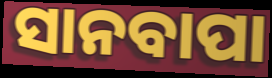
ସାନବାପା